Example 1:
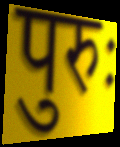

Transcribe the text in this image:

पुरुः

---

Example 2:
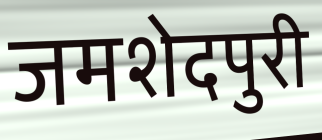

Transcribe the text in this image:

जमशेदपुरी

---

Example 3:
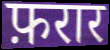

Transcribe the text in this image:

फ़रार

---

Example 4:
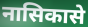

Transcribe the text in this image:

नासिकासे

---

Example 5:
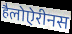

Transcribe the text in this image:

हैलोऐरीनस